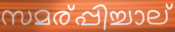
സമര്പ്പിച്ചാല്